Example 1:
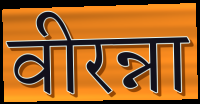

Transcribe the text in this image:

वीरन्ना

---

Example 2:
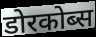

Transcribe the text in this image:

डोरकोब्स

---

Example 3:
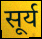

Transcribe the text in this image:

सूर्य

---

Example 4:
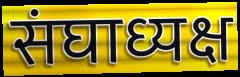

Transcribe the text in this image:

संघाध्यक्ष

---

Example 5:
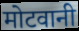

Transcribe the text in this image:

मोटवानी